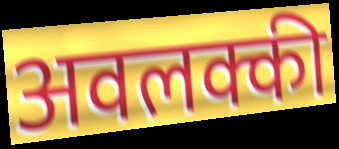
अवलक्की